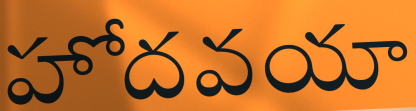
హోదవయా